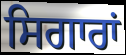
ਸਿਗਾਰਾਂ